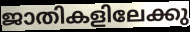
ജാതികളിലേക്കു